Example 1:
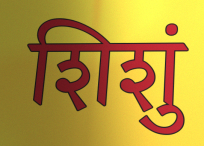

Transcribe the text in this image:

शिशुं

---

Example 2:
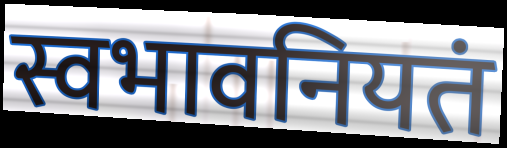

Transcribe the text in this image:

स्वभावनियतं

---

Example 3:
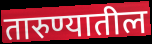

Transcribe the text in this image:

तारुण्यातील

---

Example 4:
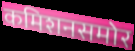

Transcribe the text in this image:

कमिशनसमोर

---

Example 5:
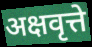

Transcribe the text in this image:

अक्षवृत्ते